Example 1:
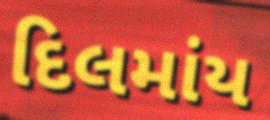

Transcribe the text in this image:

દિલમાંય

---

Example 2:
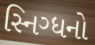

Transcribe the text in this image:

સ્નિગ્ધનો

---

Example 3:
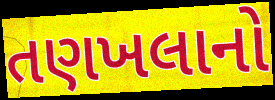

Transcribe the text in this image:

તણખલાનો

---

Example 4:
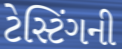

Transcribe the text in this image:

ટેસ્ટિંગની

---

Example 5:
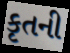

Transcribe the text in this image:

કૃતની